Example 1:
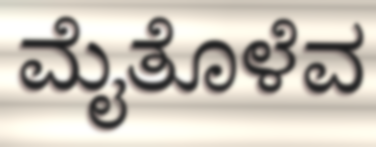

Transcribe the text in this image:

ಮೈತೊಳೆವ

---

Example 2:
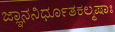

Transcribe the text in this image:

ಜ್ಞಾನನಿರ್ಧೂತಕಲ್ಮಷಾಃ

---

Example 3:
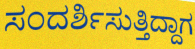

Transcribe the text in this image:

ಸಂದರ್ಶಿಸುತ್ತಿದ್ದಾಗ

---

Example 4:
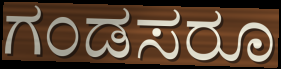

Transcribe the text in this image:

ಗಂಡಸರೂ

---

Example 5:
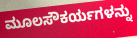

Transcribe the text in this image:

ಮೂಲಸೌಕರ್ಯಗಳನ್ನು